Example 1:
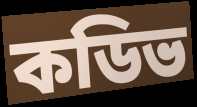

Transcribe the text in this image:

কডিভ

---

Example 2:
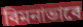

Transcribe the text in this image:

বিমনাভাবে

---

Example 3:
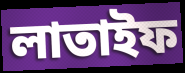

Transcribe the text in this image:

লাতাইফ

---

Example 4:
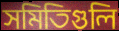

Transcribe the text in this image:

সমিতিগুলি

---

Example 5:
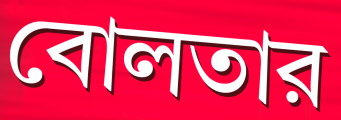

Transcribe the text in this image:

বোলতার